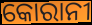
କୋରାନୀ